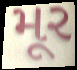
મૂર